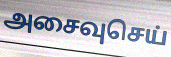
அசைவுசெய்